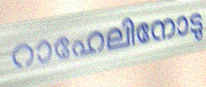
റാഹേലിനോടു